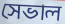
সেভাল